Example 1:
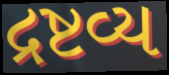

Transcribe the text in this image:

દ્રષ્ટવ્ય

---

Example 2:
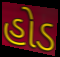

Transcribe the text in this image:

હોડ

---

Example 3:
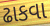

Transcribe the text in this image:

ઢાકવા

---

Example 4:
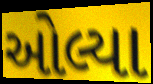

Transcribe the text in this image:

ઓલ્યા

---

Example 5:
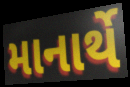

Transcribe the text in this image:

માનાર્થે